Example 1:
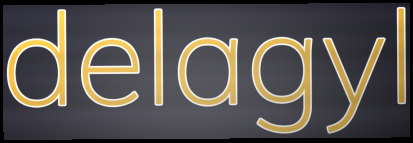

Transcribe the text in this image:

delagyl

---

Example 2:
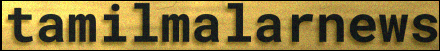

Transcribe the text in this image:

tamilmalarnews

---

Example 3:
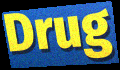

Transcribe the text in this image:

Drug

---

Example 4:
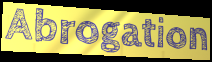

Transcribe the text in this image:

Abrogation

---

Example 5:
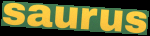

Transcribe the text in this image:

saurus